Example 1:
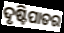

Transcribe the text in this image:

ଦୃଷ୍ଟିପାତର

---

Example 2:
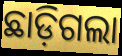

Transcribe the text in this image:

ଛାଡ଼ିଗଲା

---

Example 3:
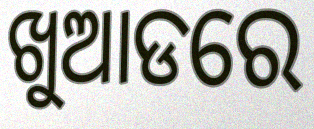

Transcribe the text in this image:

ଖୁଆଡରେ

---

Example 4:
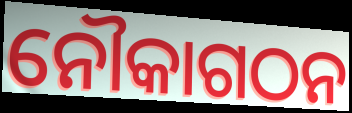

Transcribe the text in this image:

ନୌକାଗଠନ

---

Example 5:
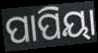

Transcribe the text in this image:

ପାପିୟା